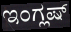
ಇಂಗ್ಲಷ್